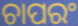
ଚାପରଂ